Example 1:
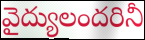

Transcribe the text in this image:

వైద్యులందరినీ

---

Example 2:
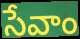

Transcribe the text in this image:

సేవాం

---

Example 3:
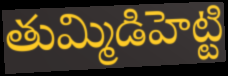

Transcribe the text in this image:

తుమ్మిడిహెట్టి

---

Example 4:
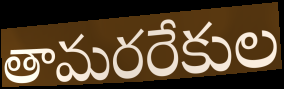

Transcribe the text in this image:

తామరరేకుల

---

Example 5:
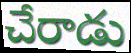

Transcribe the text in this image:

చేరాడు